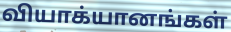
வியாக்யானங்கள்